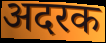
अदरक